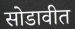
सोडावीत